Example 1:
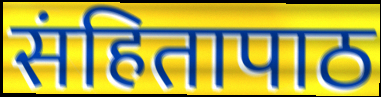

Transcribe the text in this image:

संहितापाठ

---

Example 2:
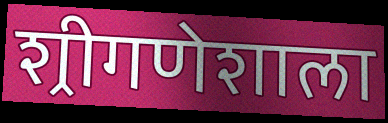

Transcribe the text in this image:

श्रीगणेशाला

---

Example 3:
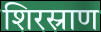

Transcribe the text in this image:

शिरस्राण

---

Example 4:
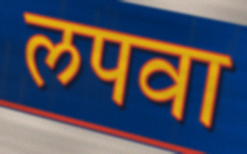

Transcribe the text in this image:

लपवा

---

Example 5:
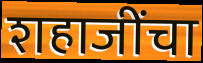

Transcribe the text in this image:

शहाजींचा